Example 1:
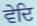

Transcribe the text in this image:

ਵੇਦਿ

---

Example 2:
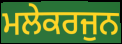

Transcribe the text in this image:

ਮਲੇਕਰਜੁਨ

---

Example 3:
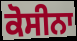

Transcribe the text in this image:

ਕੋਸੀਨਾ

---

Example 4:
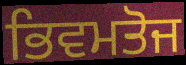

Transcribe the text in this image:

ਭਿਵਮਤੋਜ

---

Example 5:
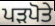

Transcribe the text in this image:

ਪੜਪੋਤੇ